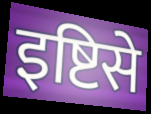
इष्टिसे